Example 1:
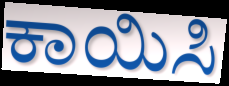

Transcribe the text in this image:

ಕಾಯಿಸಿ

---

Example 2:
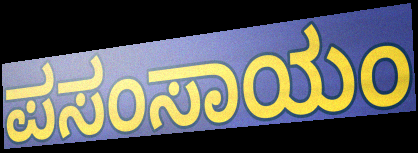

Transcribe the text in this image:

ಪಸಂಸಾಯಂ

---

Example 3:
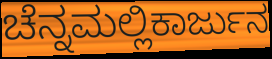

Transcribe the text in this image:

ಚೆನ್ನಮಲ್ಲಿಕಾರ್ಜುನ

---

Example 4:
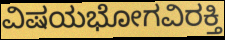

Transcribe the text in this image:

ವಿಷಯಭೋಗವಿರಕ್ತಿ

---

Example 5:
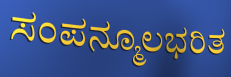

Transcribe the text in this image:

ಸಂಪನ್ಮೂಲಭರಿತ